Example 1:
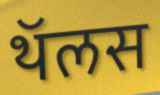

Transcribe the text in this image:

थॅलस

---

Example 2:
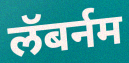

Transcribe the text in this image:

लॅबर्नम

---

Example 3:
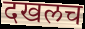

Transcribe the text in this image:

दखलच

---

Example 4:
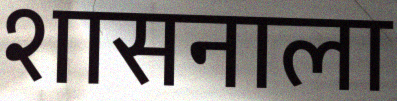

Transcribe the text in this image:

शासनाला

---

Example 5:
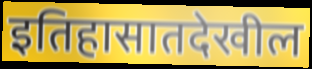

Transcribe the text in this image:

इतिहासातदेखील